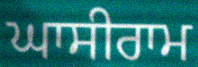
ਘਾਸੀਰਾਮ